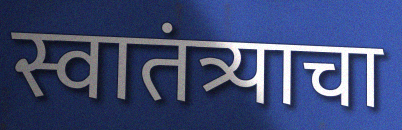
स्‍वातंत्र्याचा